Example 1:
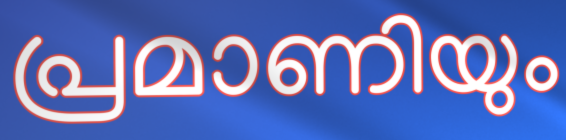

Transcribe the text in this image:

പ്രമാണിയും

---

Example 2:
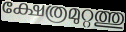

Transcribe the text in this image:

ക്ഷേത്രമുറ്റത്തു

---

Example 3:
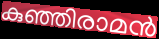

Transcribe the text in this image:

കുഞ്ഞിരാമൻ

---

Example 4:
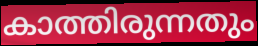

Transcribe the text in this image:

കാത്തിരുന്നതും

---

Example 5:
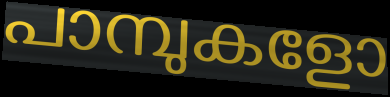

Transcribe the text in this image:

പാമ്പുകളോ